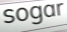
sogar